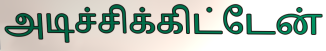
அடிச்சிக்கிட்டேன்